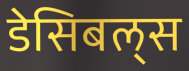
डेसिबल्स